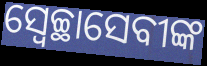
ସ୍ୱେଚ୍ଛାସେବୀଙ୍କ